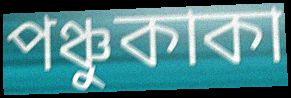
পঞ্চুকাকা